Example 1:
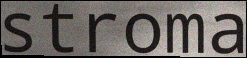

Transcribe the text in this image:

stroma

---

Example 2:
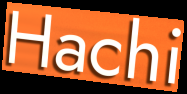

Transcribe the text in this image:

Hachi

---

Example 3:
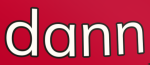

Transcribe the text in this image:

dann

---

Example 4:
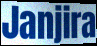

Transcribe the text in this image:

Janjira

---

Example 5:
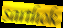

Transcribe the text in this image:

sarthok